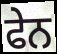
ਫੇਨ